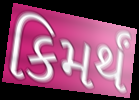
કિમર્થં